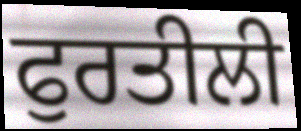
ਫੁਰਤੀਲੀ